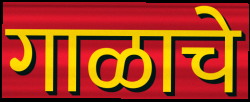
गाळाचे